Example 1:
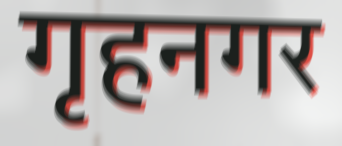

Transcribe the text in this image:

गृहनगर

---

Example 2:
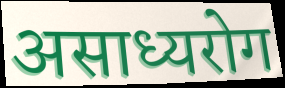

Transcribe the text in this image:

असाध्यरोग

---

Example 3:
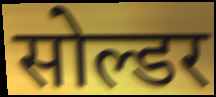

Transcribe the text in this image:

सोल्डर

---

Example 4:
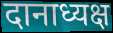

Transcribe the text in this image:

दानाध्यक्ष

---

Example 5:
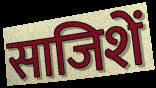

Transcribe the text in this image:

साजिशें